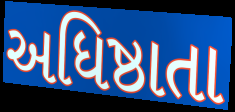
અધિષ્ઠાતા